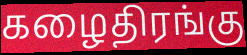
கழைதிரங்கு